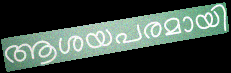
ആശയപരമായി